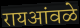
रायआंवळे